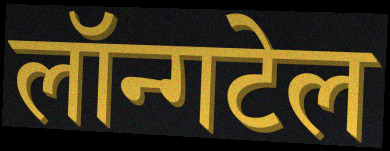
लॉन्गटेल